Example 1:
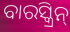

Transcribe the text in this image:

ବାରସ୍କ୍ରିନ୍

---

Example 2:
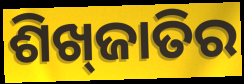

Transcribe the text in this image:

ଶିଖ୍‌ଜାତିର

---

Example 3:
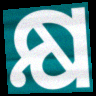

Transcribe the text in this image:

କ୍ଷ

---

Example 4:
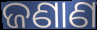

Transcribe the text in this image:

ଜଣାଣ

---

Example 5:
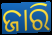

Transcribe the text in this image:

ଜାରି